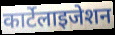
कार्टेलाइजेशन